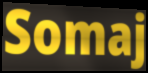
Somaj